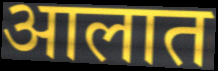
आलात